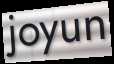
joyun